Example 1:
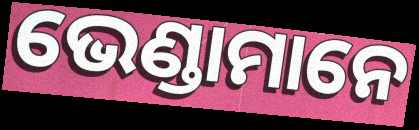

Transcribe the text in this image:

ଭେଣ୍ଡାମାନେ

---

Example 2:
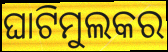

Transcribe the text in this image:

ଘାଟିମୁଲକର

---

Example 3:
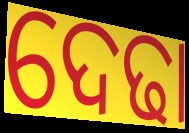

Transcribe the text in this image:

ଦେଢା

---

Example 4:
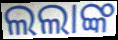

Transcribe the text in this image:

ଲଲାଙ୍କ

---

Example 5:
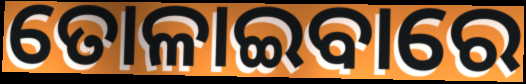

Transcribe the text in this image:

ତୋଳାଇବାରେ